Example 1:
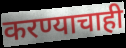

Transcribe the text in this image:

करण्याचाही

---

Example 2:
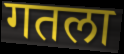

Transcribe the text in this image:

गतला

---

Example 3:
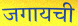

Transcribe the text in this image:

जगायची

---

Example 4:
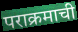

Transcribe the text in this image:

पराक्रमाची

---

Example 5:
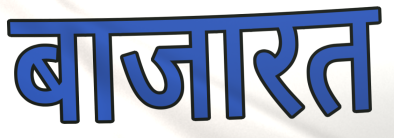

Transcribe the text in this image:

बाजारत